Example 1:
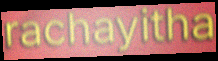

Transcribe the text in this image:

rachayitha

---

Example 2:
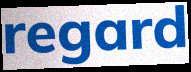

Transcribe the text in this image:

regard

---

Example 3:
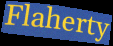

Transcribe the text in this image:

Flaherty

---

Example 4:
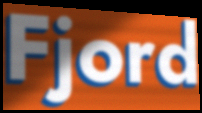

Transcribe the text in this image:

Fjord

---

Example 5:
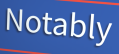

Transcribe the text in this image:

Notably